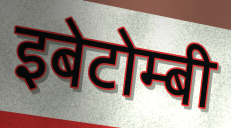
इबेटोम्बी